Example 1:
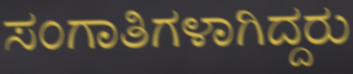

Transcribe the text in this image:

ಸಂಗಾತಿಗಳಾಗಿದ್ದರು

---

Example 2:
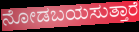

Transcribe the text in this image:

ನೋಡಬಯಸುತ್ತಾರೆ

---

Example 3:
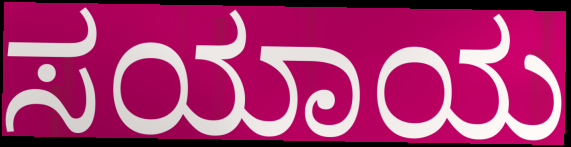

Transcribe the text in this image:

ಸಯಾಯ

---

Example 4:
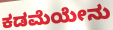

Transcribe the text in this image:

ಕಡಮೆಯೇನು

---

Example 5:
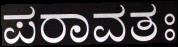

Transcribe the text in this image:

ಪರಾವತಃ